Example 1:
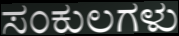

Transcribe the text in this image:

ಸಂಕುಲಗಳು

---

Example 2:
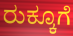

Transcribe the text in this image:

ರುಕ್ಕೂಗೆ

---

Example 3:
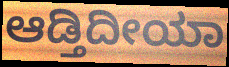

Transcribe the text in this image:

ಆಡ್ತಿದೀಯಾ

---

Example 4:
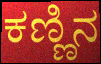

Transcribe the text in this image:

ಕಣ್ಣಿನ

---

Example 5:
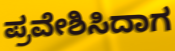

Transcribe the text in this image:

ಪ್ರವೇಶಿಸಿದಾಗ